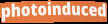
photoinduced